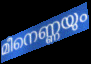
മീനെണ്ണയും